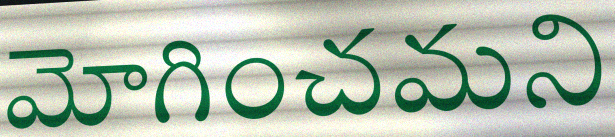
మోగించమని